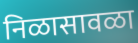
निळासावळा